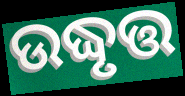
ଉଦ୍ଧୃତ୍ତ